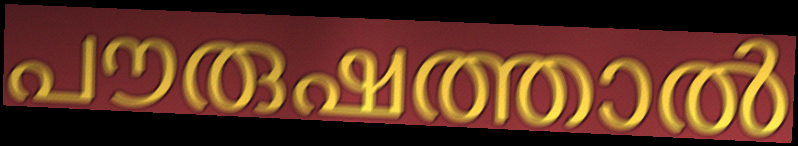
പൗരുഷത്താൽ